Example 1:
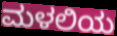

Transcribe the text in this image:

ಮಳಲಿಯ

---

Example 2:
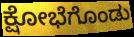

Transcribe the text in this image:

ಕ್ಷೋಭೆಗೊಂಡು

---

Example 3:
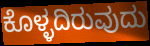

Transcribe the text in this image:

ಕೊಳ್ಳದಿರುವುದು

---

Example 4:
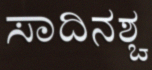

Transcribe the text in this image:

ಸಾದಿನಶ್ಚ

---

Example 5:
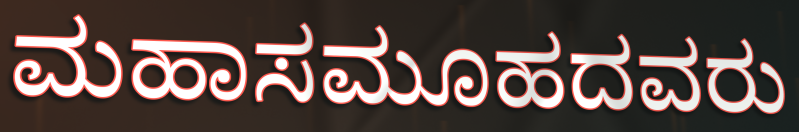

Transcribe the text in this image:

ಮಹಾಸಮೂಹದವರು